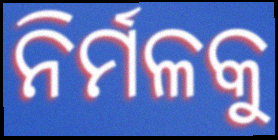
ନିର୍ମଳକୁ